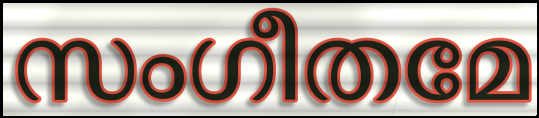
സംഗീതമേ